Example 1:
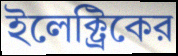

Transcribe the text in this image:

ইলেক্ট্রিকের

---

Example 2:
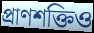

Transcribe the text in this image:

প্রাণশক্তিও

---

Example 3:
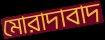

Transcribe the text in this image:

মোরাদাবাদ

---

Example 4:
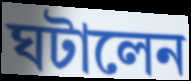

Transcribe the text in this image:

ঘটালেন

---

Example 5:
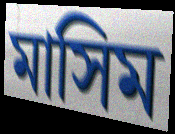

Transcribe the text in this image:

মাসিম